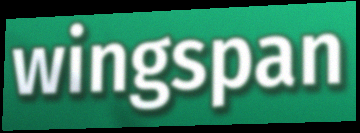
wingspan